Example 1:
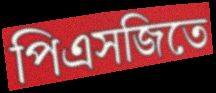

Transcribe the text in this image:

পিএসজিতে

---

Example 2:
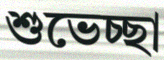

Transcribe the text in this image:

শুভেচ্ছা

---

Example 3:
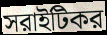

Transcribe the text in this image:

সরাইটিকর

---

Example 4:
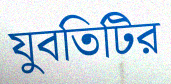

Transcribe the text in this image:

যুবতিটির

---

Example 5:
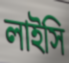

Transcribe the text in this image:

লাইসি